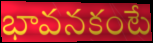
భావనకంటే